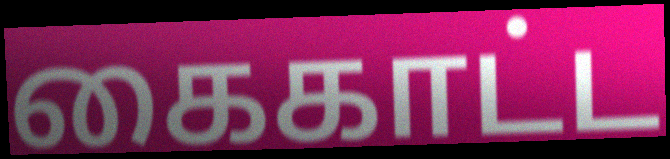
கைகாட்ட